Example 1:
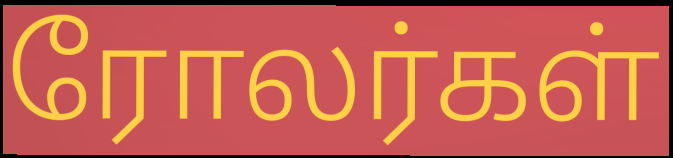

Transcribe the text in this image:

ரோலர்கள்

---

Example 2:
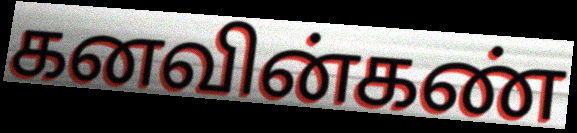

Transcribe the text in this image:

கனவின்கண்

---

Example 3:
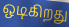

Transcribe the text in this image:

ஒடிகிறது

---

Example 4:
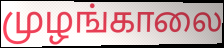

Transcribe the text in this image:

முழங்காலை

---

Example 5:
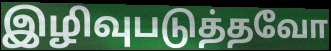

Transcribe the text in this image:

இழிவுபடுத்தவோ